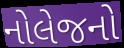
નોલેજનો